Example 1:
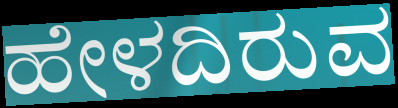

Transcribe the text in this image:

ಹೇಳದಿರುವ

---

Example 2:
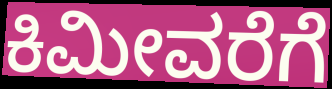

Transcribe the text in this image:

ಕಿಮೀವರೆಗೆ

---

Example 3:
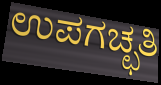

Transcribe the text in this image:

ಉಪಗಚ್ಛತಿ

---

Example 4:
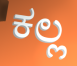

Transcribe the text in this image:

ಕಲ್ಲ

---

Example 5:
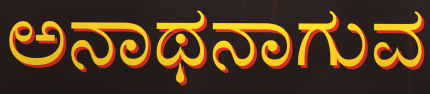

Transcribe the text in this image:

ಅನಾಥನಾಗುವ